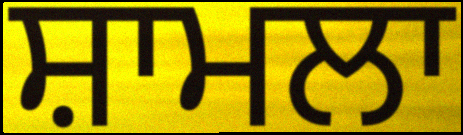
ਸ਼ਾਮਲਾ